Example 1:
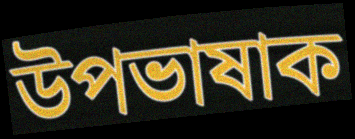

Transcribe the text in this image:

উপভাষাক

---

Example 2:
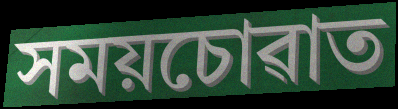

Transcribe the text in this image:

সময়চোৱাত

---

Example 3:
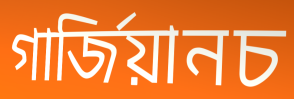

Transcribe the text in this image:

গাৰ্জিয়ানচ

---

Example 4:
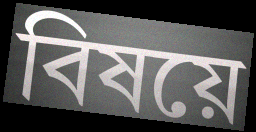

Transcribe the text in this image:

বিষয়ে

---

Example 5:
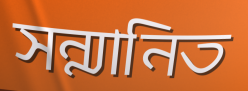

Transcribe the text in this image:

সন্মানিত